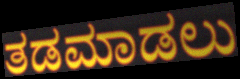
ತಡಮಾಡಲು